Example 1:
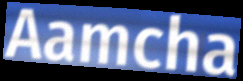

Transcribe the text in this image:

Aamcha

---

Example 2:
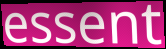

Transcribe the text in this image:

essent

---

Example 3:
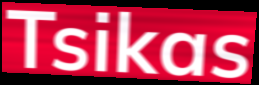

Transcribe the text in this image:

Tsikas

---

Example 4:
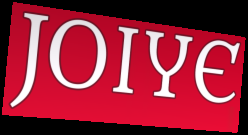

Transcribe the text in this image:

JOIYE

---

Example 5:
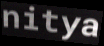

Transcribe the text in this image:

nitya